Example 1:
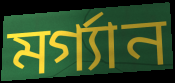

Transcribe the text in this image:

মর্গ্যান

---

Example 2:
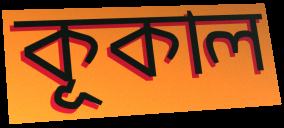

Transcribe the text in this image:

কূকাল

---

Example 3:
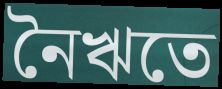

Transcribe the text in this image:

নৈঋতে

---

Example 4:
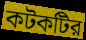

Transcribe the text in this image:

কটকটির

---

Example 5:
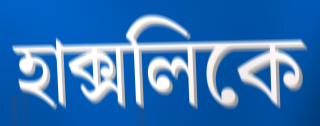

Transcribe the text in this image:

হাক্সলিকে